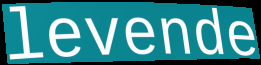
levende